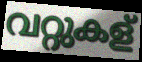
വറ്റുകള്